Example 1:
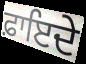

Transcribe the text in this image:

ਫ਼ਾਇਦੇ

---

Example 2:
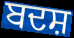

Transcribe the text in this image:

ਬਦਸ਼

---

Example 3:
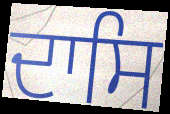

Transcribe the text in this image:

ਦਾਸਿ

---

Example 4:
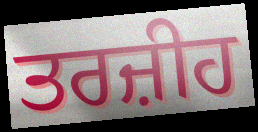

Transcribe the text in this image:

ਤਰਜ਼ੀਹ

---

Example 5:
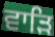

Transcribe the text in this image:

ਵਾੜਿ